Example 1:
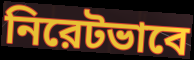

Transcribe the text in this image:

নিরেটভাবে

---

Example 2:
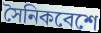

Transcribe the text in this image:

সৈনিকবেশে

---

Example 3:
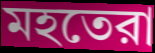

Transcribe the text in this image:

মহতেরা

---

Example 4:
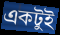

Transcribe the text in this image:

একটুই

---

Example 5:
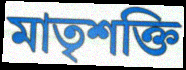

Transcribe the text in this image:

মাতৃশক্তি